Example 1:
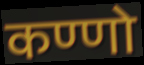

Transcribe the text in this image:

कण्णो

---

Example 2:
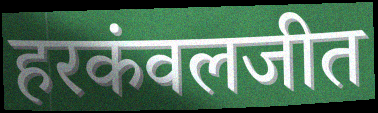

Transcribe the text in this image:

हरकंवलजीत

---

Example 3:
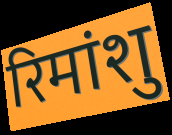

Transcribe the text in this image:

रिमांशु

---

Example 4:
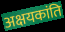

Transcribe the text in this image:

अक्षयकांति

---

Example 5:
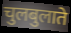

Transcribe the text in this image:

चुलबुलाते